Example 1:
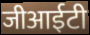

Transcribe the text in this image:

जीआईटी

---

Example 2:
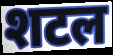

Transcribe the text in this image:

शटल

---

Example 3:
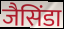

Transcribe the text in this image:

जैसिंडा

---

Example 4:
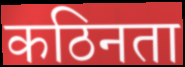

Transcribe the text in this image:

कठिनता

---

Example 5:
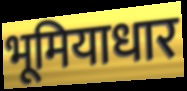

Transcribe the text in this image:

भूमियाधार